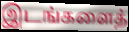
இடங்களைத்